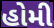
હોમી